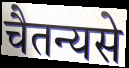
चैतन्यसे